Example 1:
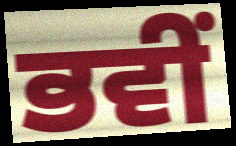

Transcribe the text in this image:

ਭਵੀਂ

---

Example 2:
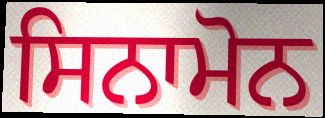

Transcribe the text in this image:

ਸਿਨਾਮੋਨ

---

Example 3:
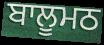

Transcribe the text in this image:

ਬਾਲੂਮਠ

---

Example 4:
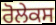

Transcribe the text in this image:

ਰੋਲੇਕਸ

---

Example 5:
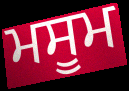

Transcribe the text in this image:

ਮਸੂਮ